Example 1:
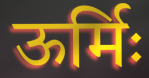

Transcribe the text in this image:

ऊर्मिः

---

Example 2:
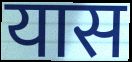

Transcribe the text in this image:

यास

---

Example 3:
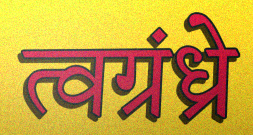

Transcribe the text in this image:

त्वग्रंध्रे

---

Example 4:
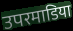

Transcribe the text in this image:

उपरमाडिया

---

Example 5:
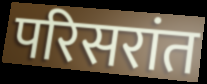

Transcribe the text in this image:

परिसरांत